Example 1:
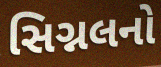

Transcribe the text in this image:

સિગ્નલનો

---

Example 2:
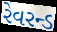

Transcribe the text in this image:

રેવરન્ડ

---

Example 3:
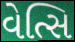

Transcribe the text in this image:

વેત્સિ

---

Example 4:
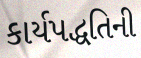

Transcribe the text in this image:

કાર્યપદ્ધતિની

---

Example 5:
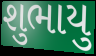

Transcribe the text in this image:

શુભાયુ